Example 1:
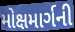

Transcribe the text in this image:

મોક્ષમાર્ગની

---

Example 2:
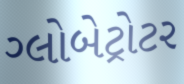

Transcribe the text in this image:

ગ્લોબેટ્રોટર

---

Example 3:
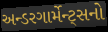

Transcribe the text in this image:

અન્ડરગાર્મેન્ટ્સનો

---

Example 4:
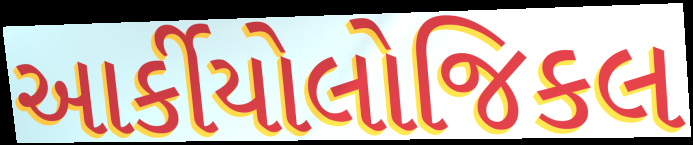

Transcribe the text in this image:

આર્કીયોલોજિકલ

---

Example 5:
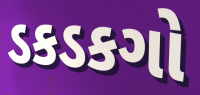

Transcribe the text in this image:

ડકડકગો